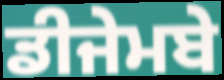
ਡੀਜੇਮਬੇ